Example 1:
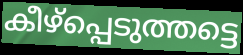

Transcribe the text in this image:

കീഴ്പ്പെടുത്തട്ടെ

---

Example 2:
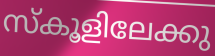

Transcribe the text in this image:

സ്കൂളിലേക്കു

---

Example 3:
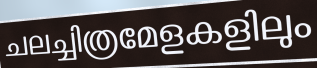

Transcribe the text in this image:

ചലച്ചിത്രമേളകളിലും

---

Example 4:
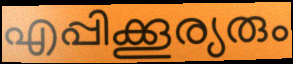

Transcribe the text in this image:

എപ്പിക്കൂര്യരും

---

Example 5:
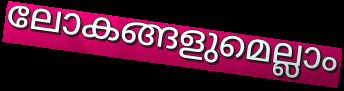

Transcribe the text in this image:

ലോകങ്ങളുമെല്ലാം